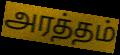
அரத்தம்